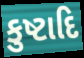
કુષ્ટાદિ